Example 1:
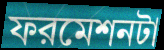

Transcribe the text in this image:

ফরমেশনটা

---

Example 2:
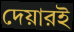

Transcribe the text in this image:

দেয়ারই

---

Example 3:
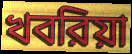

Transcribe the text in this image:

খবরিয়া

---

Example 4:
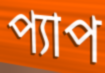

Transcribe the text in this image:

প্যাপ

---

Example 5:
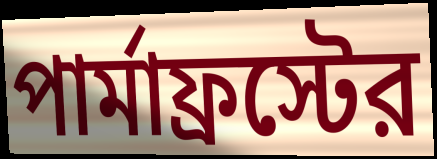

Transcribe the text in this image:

পার্মাফ্রস্টের